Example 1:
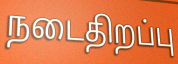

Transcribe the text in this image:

நடைதிறப்பு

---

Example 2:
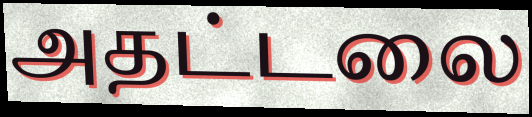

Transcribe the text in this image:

அதட்டலை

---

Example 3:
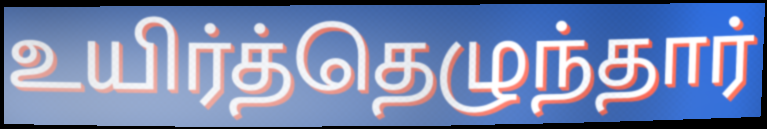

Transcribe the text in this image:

உயிர்த்தெழுந்தார்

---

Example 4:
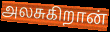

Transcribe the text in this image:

அலசுகிறான்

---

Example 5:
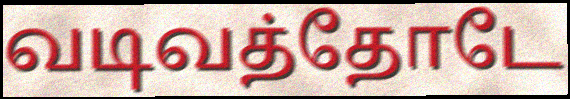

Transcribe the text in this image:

வடிவத்தோடே